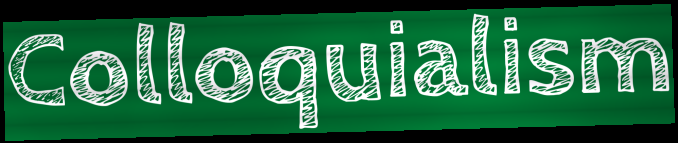
Colloquialism